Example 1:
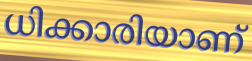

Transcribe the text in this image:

ധിക്കാരിയാണ്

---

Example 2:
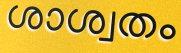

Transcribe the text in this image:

ശാശ്വതം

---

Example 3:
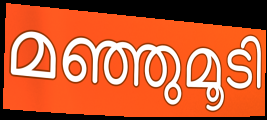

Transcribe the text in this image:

മഞ്ഞുമൂടി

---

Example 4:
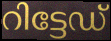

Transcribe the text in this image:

റിട്ടേഡ്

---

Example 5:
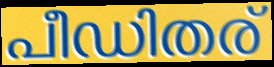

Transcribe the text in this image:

പീഡിതര്